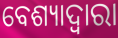
ବେଶ୍ୟାଦ୍ୱାରା